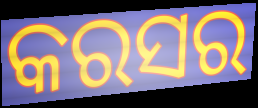
କରସର